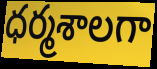
ధర్మశాలగా